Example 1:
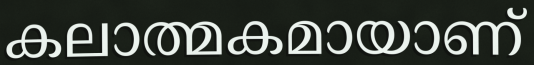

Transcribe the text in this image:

കലാത്മകമായാണ്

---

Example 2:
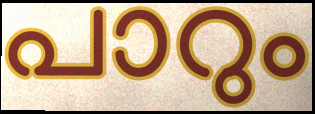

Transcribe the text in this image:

പാറും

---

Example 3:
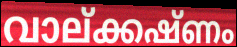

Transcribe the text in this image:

വാല്ക്കഷ്ണം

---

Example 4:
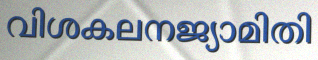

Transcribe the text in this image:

വിശകലനജ്യാമിതി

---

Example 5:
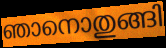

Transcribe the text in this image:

ഞാനൊതുങ്ങി